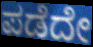
ಪಡೆದೇ